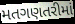
મતગણતરીમાં